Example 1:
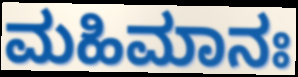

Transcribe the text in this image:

ಮಹಿಮಾನಃ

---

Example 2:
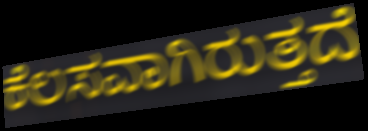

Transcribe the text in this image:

ಕೆಲಸವಾಗಿರುತ್ತದೆ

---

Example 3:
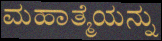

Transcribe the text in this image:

ಮಹಾತ್ಮೆಯನ್ನು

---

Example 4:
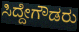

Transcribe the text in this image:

ಸಿದ್ದೇಗೌಡರು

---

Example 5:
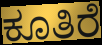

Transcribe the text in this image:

ಕೂತಿರೆ